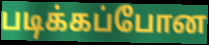
படிக்கப்போன